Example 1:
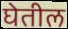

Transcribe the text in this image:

घेतील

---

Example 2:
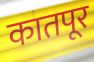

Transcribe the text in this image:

कातपूर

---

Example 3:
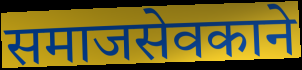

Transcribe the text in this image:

समाजसेवकाने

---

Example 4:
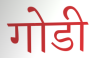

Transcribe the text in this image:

गोडी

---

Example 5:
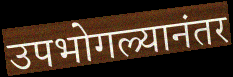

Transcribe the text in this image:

उपभोगल्यानंतर